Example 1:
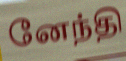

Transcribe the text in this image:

னேந்தி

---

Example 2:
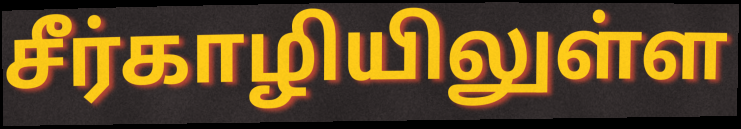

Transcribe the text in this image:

சீர்காழியிலுள்ள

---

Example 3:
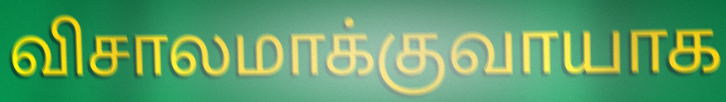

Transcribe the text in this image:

விசாலமாக்குவாயாக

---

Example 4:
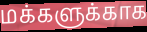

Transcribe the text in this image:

மக்களுக்காக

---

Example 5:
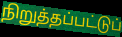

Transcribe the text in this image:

நிறுத்தப்பட்டுப்